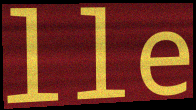
lle